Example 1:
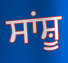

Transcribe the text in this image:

ਸਾਂਸ਼ੂ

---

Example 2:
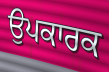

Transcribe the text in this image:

ਉਪਕਾਰਕ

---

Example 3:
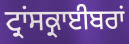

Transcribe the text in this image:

ਟ੍ਰਾਂਸਕ੍ਰਾਈਬਰਾਂ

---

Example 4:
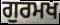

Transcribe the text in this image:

ਗੁਰਮਖ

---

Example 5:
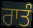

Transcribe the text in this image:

ਰਾਤੰ